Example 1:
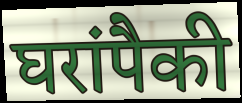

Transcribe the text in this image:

घरांपैकी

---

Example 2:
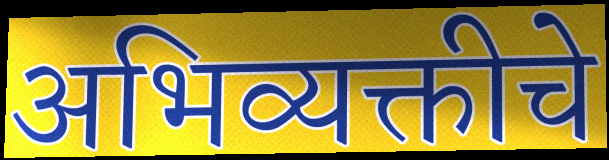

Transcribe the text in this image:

अभिव्यक्तीचे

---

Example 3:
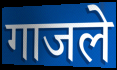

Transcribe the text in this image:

गाजले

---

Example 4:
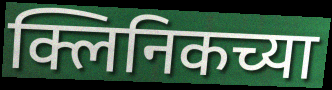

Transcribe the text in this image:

क्लिनिकच्या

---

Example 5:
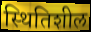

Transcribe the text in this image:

स्थितिशील